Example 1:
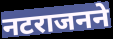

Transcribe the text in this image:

नटराजनने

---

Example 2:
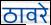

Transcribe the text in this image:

ठावरे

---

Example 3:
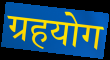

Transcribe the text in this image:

ग्रहयोग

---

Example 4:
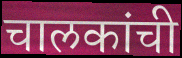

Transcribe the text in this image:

चालकांची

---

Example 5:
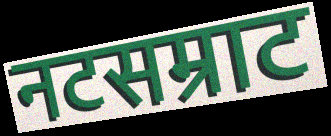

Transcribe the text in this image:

नटसम्राट